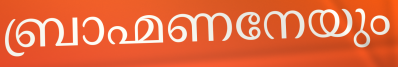
ബ്രാഹ്മണനേയും